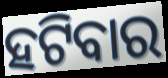
ହଟିବାର